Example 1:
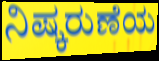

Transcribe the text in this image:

ನಿಷ್ಕರುಣೆಯ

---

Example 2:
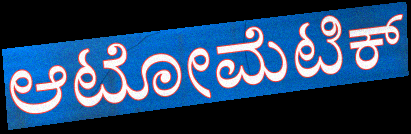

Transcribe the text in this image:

ಆಟೋಮೆಟಿಕ್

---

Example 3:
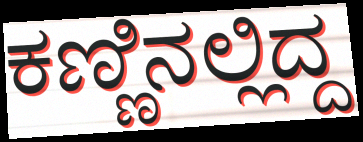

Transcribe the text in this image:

ಕಣ್ಣಿನಲ್ಲಿದ್ದ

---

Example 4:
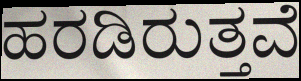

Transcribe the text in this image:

ಹರಡಿರುತ್ತವೆ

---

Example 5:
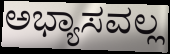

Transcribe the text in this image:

ಅಭ್ಯಾಸವಲ್ಲ